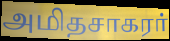
அமிதசாகரர்